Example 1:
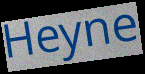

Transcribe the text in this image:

Heyne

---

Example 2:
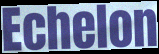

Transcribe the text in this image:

Echelon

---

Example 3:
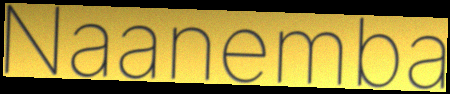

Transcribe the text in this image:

Naanemba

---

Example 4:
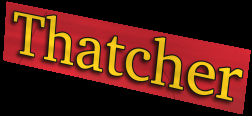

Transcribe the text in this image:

Thatcher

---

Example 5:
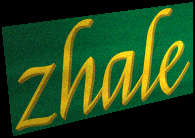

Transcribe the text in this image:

zhale